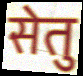
सेतु